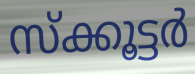
സ്ക്കൂട്ടർ